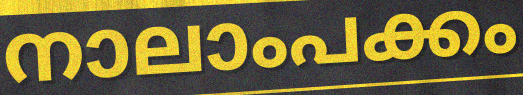
നാലാംപക്കം